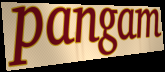
pangam